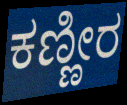
ಕಣ್ಣೀರ